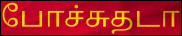
போச்சுதடா